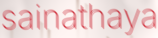
sainathaya